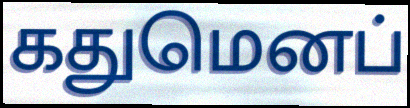
கதுமெனப்